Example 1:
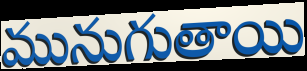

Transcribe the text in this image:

మునుగుతాయి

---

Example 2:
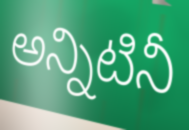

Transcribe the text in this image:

అన్నిటినీ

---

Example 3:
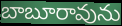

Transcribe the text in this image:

బాబూరావును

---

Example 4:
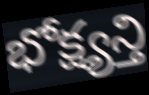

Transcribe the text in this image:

భోక్ష్యన్తి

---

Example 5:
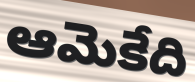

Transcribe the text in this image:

ఆమెకేది